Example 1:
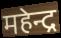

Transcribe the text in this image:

महेन्द्र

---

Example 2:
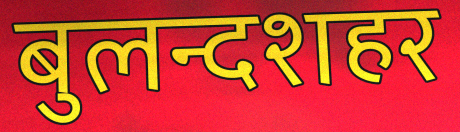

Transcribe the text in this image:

बुलन्दशहर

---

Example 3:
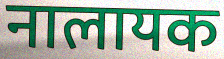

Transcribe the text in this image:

नालायक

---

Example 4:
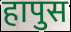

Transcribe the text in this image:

हापुस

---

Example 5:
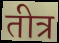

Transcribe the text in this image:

तीत्र